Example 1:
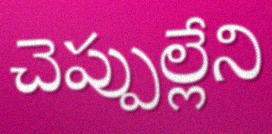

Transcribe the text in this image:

చెప్పుల్లేని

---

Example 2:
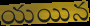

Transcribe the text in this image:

యయిన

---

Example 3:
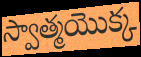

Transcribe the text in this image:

స్వాత్మయొక్క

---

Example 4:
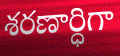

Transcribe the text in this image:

శరణార్ధిగా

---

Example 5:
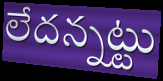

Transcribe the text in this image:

లేదన్నట్టు